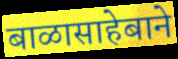
बाळासाहेबाने